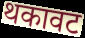
थकावट